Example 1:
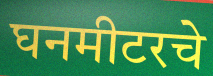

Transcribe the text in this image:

घनमीटरचे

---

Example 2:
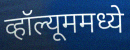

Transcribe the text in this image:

व्हॉल्यूममध्ये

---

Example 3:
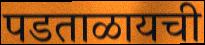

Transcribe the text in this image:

पडताळायची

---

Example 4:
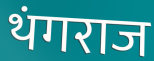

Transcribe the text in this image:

थंगराज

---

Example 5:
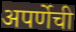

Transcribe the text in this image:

अपर्णेची